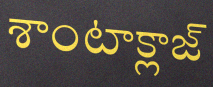
శాంటాక్లాజ్